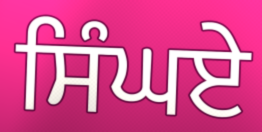
ਸਿੰਘਏ